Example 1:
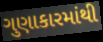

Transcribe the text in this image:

ગુણાકારમાંથી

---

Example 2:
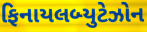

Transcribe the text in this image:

ફિનાયલબ્યુટેઝોન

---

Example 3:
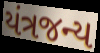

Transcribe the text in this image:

યંત્રજન્ય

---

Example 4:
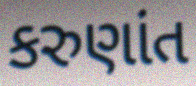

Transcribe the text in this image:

કરુણાંત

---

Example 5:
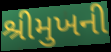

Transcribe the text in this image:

શ્રીમુખની